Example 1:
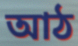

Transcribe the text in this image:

আঠ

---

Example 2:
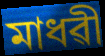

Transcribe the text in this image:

মাধৱী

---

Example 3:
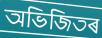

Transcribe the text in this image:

অভিজিতৰ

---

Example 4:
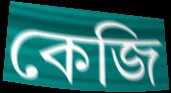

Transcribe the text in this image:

কেজি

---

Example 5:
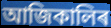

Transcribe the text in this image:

আজিকালিৰ